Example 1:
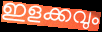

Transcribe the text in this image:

ഇളക്കവും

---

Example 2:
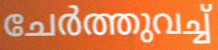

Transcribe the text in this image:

ചേർത്തുവച്ച്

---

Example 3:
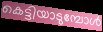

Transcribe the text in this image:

കെട്ടിയാടുമ്പോൾ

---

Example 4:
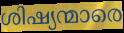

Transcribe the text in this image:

ശിഷ്യന്മാരെ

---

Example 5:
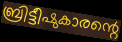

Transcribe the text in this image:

ബ്രിട്ടീഷുകാരന്റെ